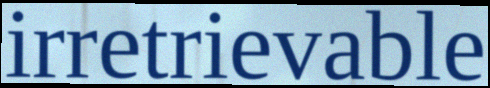
irretrievable